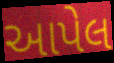
આપેલ